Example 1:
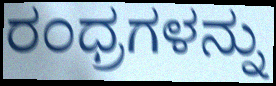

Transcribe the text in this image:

ರಂಧ್ರಗಳನ್ನು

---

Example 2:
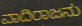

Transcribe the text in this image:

ವಾದಿರಾಜನು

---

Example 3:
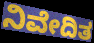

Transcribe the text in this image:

ನಿವೇದಿತ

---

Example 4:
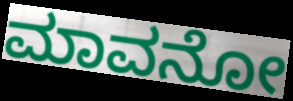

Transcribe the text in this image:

ಮಾವನೋ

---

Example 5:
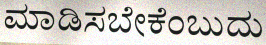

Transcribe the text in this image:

ಮಾಡಿಸಬೇಕೆಂಬುದು